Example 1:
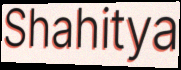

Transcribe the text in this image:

Shahitya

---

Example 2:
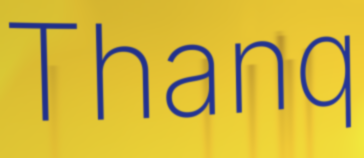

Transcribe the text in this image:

Thanq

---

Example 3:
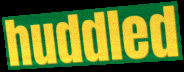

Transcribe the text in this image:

huddled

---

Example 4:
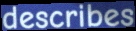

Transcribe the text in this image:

describes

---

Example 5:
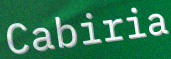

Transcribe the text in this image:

Cabiria